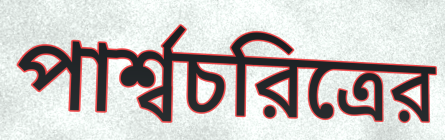
পার্শ্বচরিত্রের